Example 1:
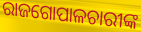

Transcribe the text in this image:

ରାଜଗୋପାଳଚାରୀଙ୍କ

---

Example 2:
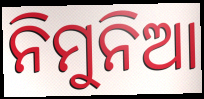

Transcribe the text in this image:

ନିମୁନିଆ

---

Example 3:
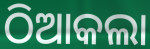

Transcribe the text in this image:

ଠିଆକଲା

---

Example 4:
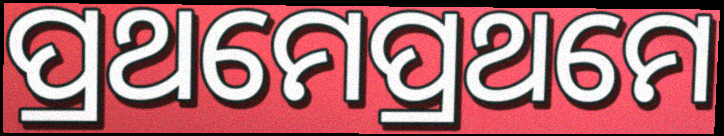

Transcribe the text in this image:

ପ୍ରଥମେପ୍ରଥମେ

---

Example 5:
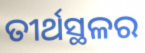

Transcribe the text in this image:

ତୀର୍ଥସ୍ଥଳର